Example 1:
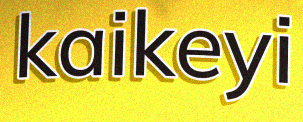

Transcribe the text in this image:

kaikeyi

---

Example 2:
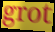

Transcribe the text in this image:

grot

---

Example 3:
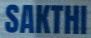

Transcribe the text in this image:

SAKTHI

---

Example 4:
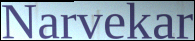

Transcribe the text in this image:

Narvekar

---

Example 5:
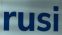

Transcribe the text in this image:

rusi